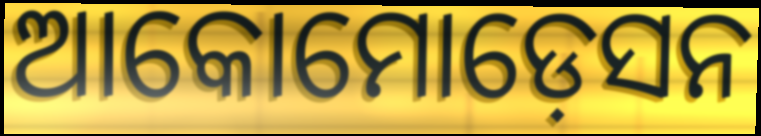
ଆକୋମୋଡ଼େସନ